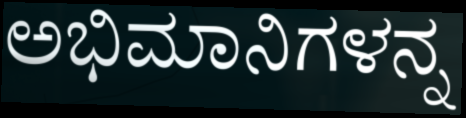
ಅಭಿಮಾನಿಗಳನ್ನ